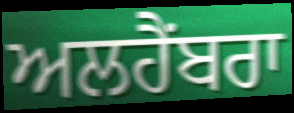
ਅਲਹੈਂਬਰਾ